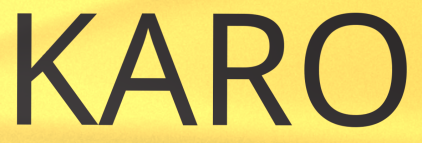
KARO